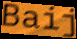
Baij